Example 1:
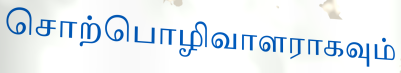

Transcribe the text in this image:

சொற்பொழிவாளராகவும்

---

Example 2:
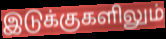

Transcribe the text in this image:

இடுக்குகளிலும்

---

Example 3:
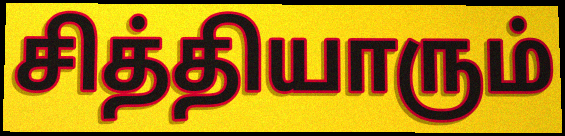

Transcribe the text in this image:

சித்தியாரும்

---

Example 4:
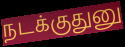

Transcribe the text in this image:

நடக்குதுனு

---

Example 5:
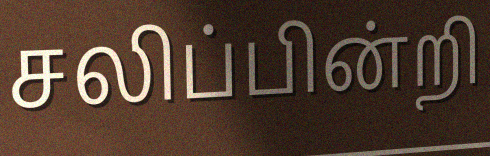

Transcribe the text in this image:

சலிப்பின்றி